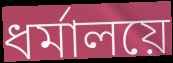
ধর্মালয়ে